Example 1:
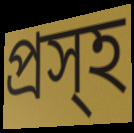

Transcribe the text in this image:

প্রস্হ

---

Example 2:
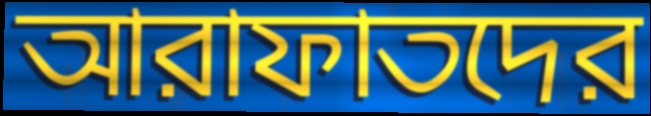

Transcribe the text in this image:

আরাফাতদের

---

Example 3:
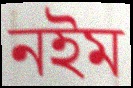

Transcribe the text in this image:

নইম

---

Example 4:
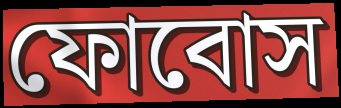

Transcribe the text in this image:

ফোবোস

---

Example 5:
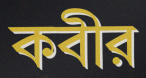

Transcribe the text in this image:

কবীর